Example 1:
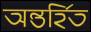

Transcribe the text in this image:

অন্তর্হিত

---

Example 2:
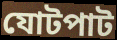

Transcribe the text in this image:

যোটপাট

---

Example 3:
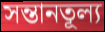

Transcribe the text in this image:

সন্তানতূল্য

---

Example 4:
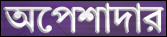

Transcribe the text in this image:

অপেশাদার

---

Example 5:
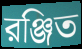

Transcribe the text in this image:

রঞ্জিত